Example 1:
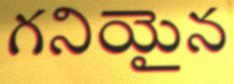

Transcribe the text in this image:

గనియైన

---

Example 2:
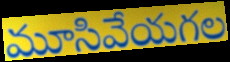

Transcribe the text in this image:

మూసివేయగల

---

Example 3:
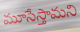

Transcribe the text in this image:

మూసేస్తామని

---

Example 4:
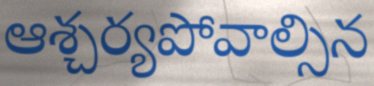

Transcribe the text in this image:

ఆశ్చర్యపోవాల్సిన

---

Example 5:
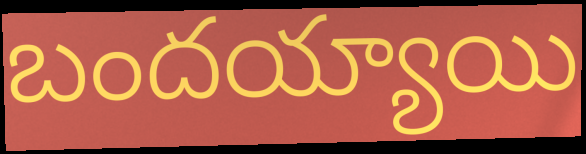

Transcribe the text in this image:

బందయ్యాయి